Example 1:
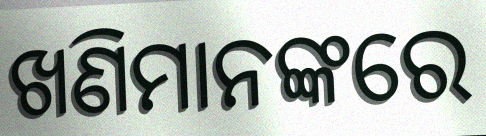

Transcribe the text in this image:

ଖଣିମାନଙ୍କରେ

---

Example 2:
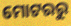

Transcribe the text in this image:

ମୋଟରରୁ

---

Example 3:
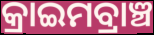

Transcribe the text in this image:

କ୍ରାଇମବ୍ରାଞ୍ଚ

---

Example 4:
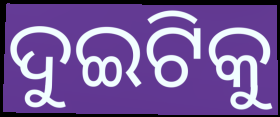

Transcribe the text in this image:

ଦୁଇଟିକୁ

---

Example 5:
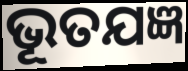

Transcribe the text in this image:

ଭୂତଯଜ୍ଞ